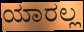
ಯಾರಲ್ಲ